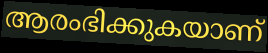
ആരംഭിക്കുകയാണ്